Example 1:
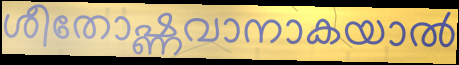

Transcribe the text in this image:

ശീതോഷ്ണവാനാകയാൽ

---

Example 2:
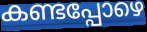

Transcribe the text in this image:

കണ്ടപ്പോഴെ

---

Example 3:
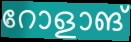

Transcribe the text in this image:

റോളാങ്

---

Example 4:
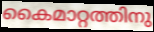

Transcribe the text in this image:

കൈമാറ്റത്തിനു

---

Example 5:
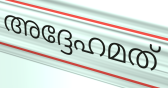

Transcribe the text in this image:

അദ്ദേഹമത്